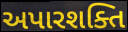
અપારશક્તિ